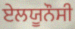
ਏਲਯੂਨੌਸੀ